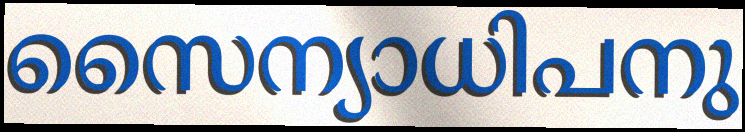
സൈന്യാധിപനു